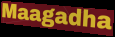
Maagadha